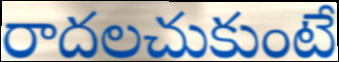
రాదలచుకుంటే